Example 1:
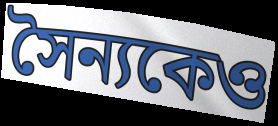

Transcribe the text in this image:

সৈন্যকেও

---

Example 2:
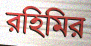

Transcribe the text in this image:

রহিমির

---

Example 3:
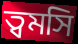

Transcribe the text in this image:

ত্বমসি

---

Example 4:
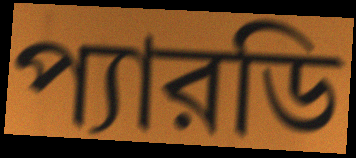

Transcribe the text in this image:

প্যারডি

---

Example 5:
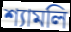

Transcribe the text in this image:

শ্যামলি